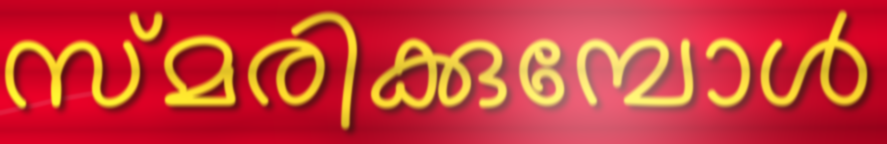
സ്മരിക്കുമ്പോൾ